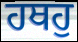
ਹਥਹੁ